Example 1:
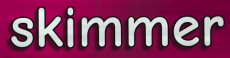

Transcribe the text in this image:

skimmer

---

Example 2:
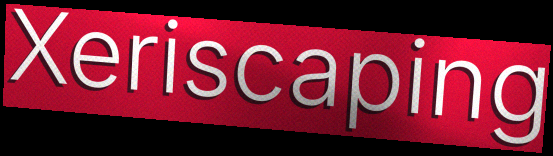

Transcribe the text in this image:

Xeriscaping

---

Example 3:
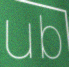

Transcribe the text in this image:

ub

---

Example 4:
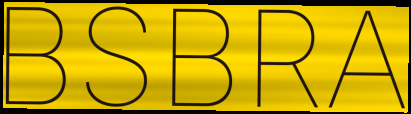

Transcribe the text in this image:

BSBRA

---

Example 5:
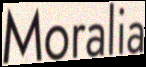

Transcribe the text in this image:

Moralia